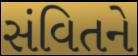
સંવિતને